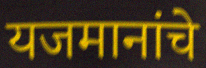
यजमानांचे